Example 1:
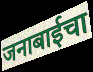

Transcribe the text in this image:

जनाबाईचा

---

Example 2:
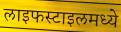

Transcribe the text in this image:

लाइफस्टाइलमध्ये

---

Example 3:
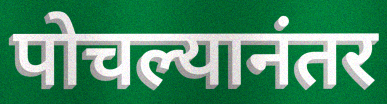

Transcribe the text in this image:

पोचल्यानंतर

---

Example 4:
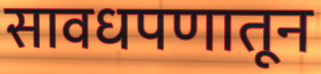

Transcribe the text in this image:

सावधपणातून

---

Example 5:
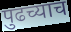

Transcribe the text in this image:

पुढच्याच